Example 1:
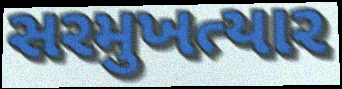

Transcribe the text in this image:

સરમુખત્યાર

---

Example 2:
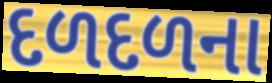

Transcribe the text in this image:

દળદળના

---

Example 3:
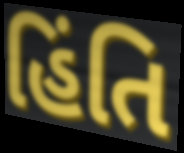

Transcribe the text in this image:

હિંતિ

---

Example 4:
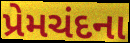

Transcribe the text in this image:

પ્રેમચંદના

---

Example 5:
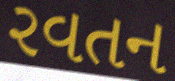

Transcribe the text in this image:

રવતન